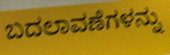
ಬದಲಾವಣೆಗಳನ್ನು